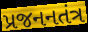
પ્રજનનતંત્ર